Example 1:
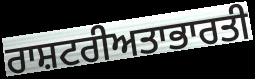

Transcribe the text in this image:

ਰਾਸ਼ਟਰੀਅਤਾਭਾਰਤੀ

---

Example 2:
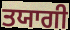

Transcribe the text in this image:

ਤਯਾਗੀ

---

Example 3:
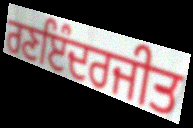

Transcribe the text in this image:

ਰਣਇੰਦਰਜੀਤ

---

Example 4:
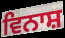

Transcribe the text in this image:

ਵਿਨਾਸ਼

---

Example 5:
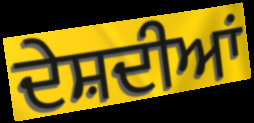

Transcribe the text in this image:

ਦੇਸ਼ਦੀਆਂ